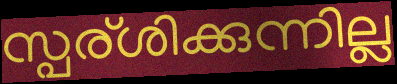
സ്പര്ശിക്കുന്നില്ല